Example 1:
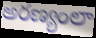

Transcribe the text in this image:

అరణ్యంలా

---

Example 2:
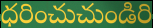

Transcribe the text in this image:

ధరించుచుండిరి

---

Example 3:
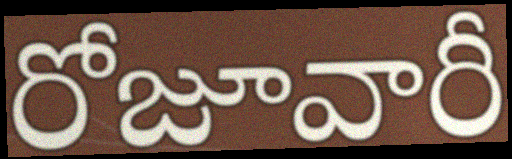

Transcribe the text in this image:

రోజూవారీ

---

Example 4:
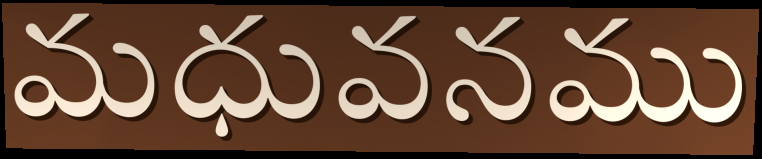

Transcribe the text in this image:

మధువనము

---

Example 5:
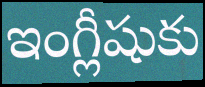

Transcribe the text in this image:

ఇంగ్లీషుకు